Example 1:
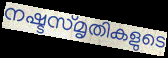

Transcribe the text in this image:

നഷ്ടസ്മൃതികളുടെ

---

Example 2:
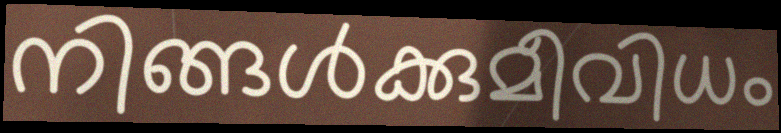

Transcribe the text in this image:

നിങ്ങൾക്കുമീവിധം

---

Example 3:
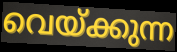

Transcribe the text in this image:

വെയ്ക്കുന്ന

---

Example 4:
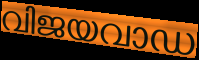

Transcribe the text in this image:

വിജയവാഡ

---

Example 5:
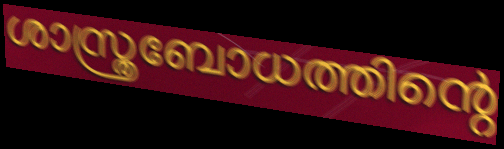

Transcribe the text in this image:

ശാസ്ത്രബോധത്തിന്റെ